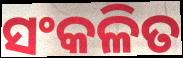
ସଂକଳିତ